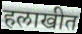
हलाखीत